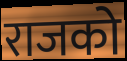
राजको